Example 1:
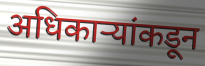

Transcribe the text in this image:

अधिकाऱ्यांकडून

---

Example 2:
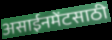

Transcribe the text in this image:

असाईनमेंटसाठी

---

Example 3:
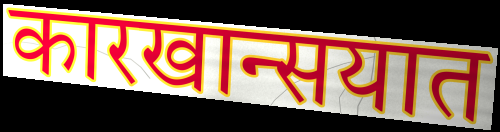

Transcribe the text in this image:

कारखान्सयात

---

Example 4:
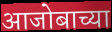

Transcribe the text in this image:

आजोबाच्या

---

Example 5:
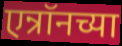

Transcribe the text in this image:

एन्रॉनच्या